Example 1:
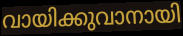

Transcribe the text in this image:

വായിക്കുവാനായി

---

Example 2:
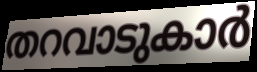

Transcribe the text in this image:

തറവാടുകാർ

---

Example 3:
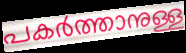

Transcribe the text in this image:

പകർത്താനുള്ള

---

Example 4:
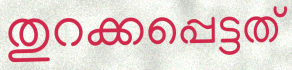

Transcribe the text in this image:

തുറക്കപ്പെട്ടത്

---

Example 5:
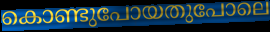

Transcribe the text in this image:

കൊണ്ടുപോയതുപോലെ